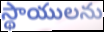
స్థాయులను